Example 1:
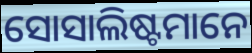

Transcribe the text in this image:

ସୋସାଲିଷ୍ଟମାନେ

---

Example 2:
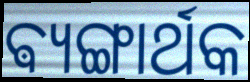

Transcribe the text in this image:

ଵ୍ୟଙ୍ଗାର୍ଥକ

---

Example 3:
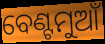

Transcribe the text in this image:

ବେଣ୍ଟମୁଆଁ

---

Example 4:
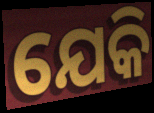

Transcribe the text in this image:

ଯେକି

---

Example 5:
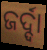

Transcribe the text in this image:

ଜର୍ଦ୍ଦା